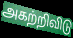
அகற்றிவிடு